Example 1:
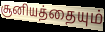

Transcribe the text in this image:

சூனியத்தையும்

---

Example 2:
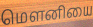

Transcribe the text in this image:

மௌனியை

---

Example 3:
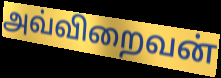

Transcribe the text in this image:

அவ்விறைவன்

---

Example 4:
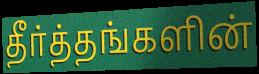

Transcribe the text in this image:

தீர்த்தங்களின்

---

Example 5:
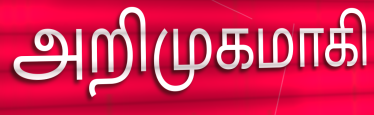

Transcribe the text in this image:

அறிமுகமாகி